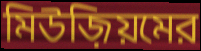
মিউজ়িয়মের